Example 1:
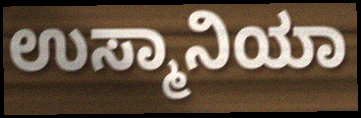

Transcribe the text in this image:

ಉಸ್ಮಾನಿಯಾ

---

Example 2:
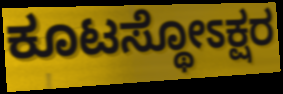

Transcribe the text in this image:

ಕೂಟಸ್ಥೋಽಕ್ಷರ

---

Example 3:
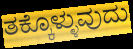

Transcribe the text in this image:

ತಕ್ಕೊಳ್ಳುವುದು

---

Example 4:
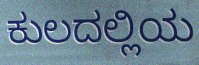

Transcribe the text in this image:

ಕುಲದಲ್ಲಿಯ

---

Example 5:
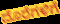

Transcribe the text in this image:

ದೊರೆಗಳಿಗೆ